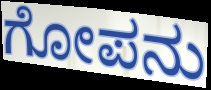
ಗೋಪನು